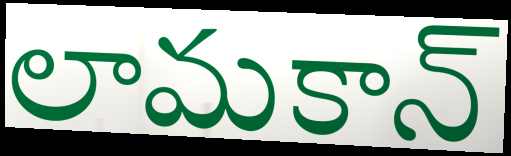
లామకాన్